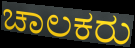
ಚಾಲಕರು